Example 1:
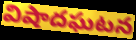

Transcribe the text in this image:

విషాదఘటన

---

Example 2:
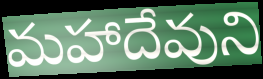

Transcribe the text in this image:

మహాదేవుని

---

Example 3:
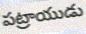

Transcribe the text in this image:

పట్రాయుడు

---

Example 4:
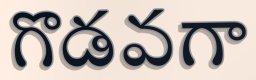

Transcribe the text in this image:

గొడవగా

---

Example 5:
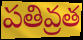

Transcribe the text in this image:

పతివ్రత